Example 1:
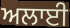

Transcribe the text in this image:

ਅਲਾਈ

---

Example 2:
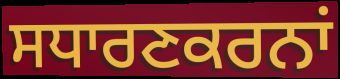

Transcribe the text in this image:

ਸਧਾਰਣਕਰਨਾਂ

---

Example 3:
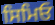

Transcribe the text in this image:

ਸਿਮਿਓ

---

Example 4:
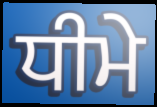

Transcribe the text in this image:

ਧੀਮੇ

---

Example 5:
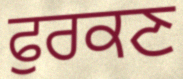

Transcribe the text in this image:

ਫੁਰਕਣ